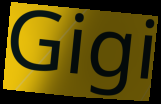
Gigi